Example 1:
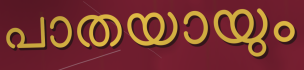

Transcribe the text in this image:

പാതയായും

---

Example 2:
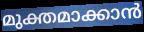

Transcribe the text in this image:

മുക്തമാക്കാൻ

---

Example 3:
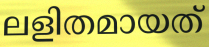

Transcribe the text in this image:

ലളിതമായത്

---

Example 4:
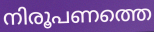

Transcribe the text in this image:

നിരൂപണത്തെ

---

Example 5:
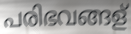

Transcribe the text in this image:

പരിഭവങ്ങള്